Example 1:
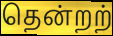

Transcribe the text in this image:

தென்றற்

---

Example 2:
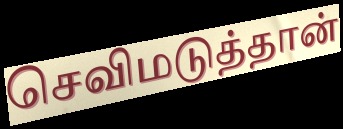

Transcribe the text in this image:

செவிமடுத்தான்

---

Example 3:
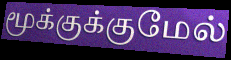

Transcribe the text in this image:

மூக்குக்குமேல்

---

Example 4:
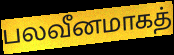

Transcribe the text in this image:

பலவீனமாகத்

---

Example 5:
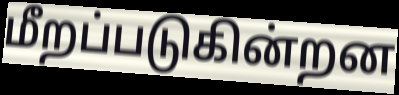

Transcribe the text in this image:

மீறப்படுகின்றன